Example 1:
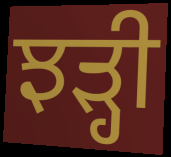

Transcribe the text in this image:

ਝੜ੍ਹੀ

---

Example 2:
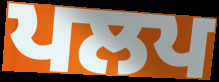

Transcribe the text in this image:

ਪਲਪ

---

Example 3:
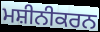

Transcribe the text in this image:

ਮਸ਼ੀਨੀਕਰਨ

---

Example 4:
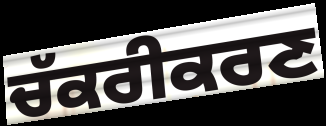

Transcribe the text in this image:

ਚੱਕਰੀਕਰਣ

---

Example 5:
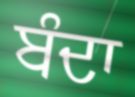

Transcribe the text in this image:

ਬੰਦਾ